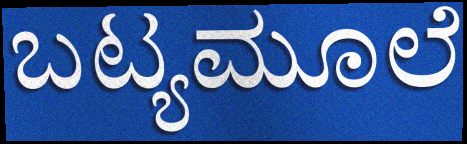
ಬಟ್ಯಮೂಲೆ